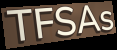
TFSAs